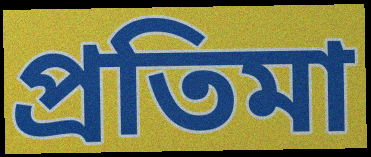
প্ৰতিমা